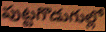
పుట్టగొడుగుల్లో